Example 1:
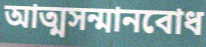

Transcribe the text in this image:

আত্মসন্মানবোধ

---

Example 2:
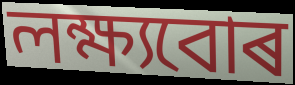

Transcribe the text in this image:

লক্ষ্যবোৰ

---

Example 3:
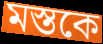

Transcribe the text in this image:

মস্তকে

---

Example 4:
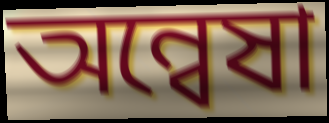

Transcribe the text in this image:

অন্বেষা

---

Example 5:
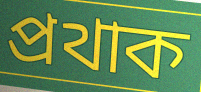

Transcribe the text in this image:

প্ৰথাক